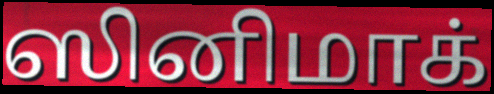
ஸினிமாக்